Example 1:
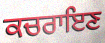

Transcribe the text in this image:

ਕਚਰਾਇਣ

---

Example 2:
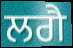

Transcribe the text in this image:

ਲਗੈ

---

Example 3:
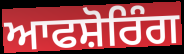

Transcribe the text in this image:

ਆਫਸ਼ੋਰਿੰਗ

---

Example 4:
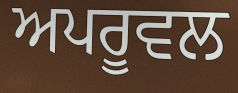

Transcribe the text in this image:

ਅਪਰੂਵਲ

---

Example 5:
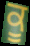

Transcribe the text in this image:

ਕੂ